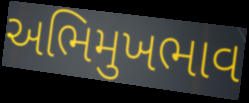
અભિમુખભાવ